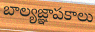
బాల్యజ్ఞాపకాలు